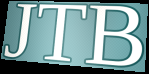
JTB